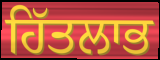
ਹਿੱਤਲਾਭ